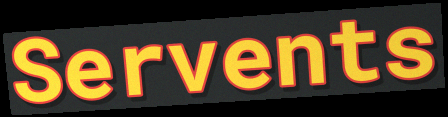
Servents